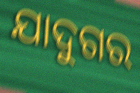
ଯାଦୁଗର